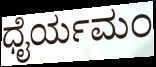
ಧೈರ್ಯಮಂ